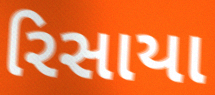
રિસાયા